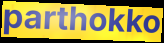
parthokko